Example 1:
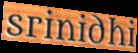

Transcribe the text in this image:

srinidhi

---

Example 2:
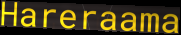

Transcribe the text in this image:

Hareraama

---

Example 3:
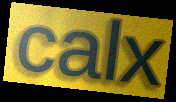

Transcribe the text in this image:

calx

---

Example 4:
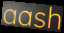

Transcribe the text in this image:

aash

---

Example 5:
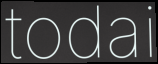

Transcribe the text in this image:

todai